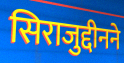
सिराजुद्दीनने